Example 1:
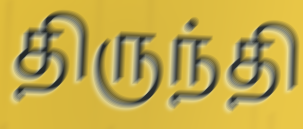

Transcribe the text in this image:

திருந்தி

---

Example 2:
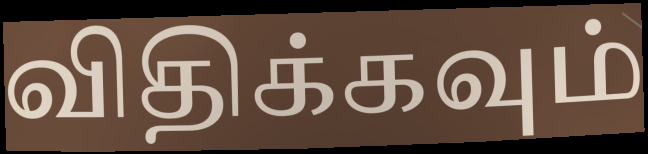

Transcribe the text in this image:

விதிக்கவும்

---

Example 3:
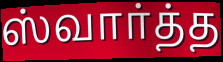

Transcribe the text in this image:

ஸ்வார்த்த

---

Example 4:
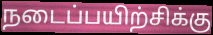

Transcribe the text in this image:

நடைப்பயிற்சிக்கு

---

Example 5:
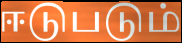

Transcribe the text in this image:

ஈடுபடும்